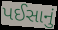
પઈસાનું